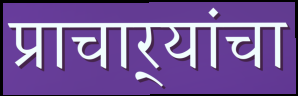
प्राचार्यांचा